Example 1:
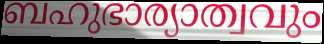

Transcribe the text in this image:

ബഹുഭാര്യാത്വവും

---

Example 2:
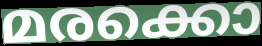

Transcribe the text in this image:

മരക്കൊ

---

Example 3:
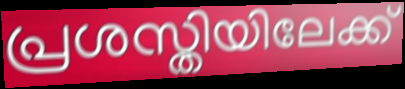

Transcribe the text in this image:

പ്രശസ്തിയിലേക്ക്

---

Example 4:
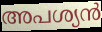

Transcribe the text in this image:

അപശ്യൻ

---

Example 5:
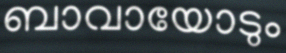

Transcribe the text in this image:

ബാവായോടും